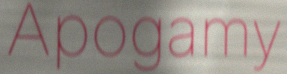
Apogamy